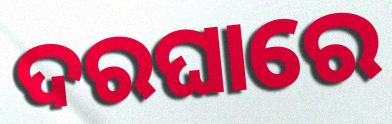
ଦରଘାରେ